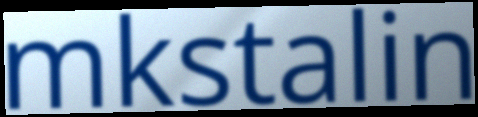
mkstalin